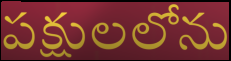
పక్షులలోను